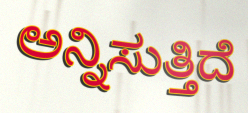
ಅನ್ನಿಸುತ್ತಿದೆ